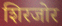
शिरजोर